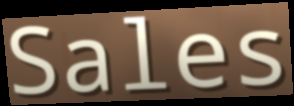
Sales